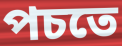
পচতে